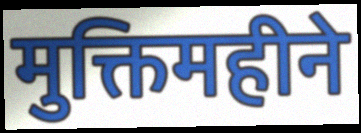
मुक्तिमहीने